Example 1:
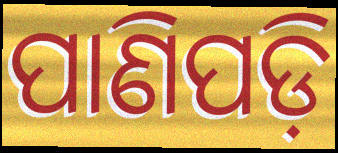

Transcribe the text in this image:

ପାଣିପଡ଼ି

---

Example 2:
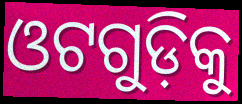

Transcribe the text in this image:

ଓଟଗୁଡ଼ିକୁ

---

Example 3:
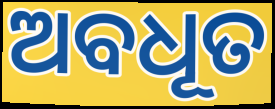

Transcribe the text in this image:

ଅବଧୂତ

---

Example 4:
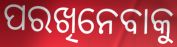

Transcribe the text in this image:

ପରଖିନେବାକୁ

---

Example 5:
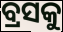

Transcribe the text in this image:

ବ୍ରସକୁ